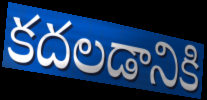
కదలడానికి